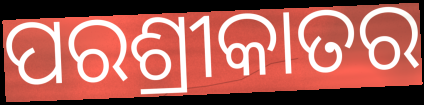
ପରଶ୍ରୀକାତର